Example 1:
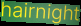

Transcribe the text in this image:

hairnight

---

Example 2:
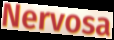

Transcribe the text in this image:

Nervosa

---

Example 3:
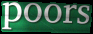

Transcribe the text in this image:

poors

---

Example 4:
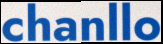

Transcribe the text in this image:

chanllo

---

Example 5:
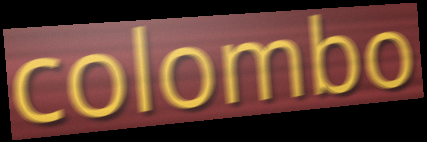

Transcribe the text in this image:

colombo